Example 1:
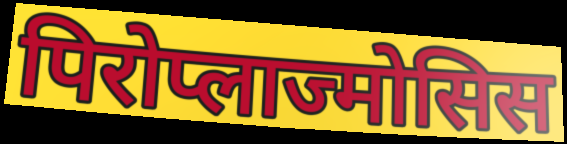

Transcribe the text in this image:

पिरोप्लाज्मोसिस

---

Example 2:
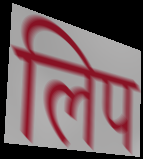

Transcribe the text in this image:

लिप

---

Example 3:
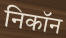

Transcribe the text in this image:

निकॉन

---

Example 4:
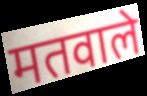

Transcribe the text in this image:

मतवाले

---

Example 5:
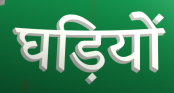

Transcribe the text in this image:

घड़ियों